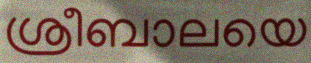
ശ്രീബാലയെ